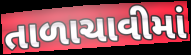
તાળાચાવીમાં